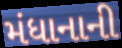
મંધાનાની